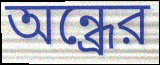
অন্ধ্রের